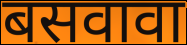
बसवावा